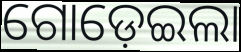
ଗୋଡ଼େଇଲା